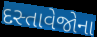
દસ્તાવેજોના